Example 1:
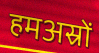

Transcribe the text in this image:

हमअस्रों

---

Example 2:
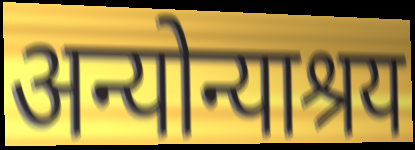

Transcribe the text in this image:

अन्योन्याश्रय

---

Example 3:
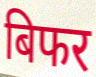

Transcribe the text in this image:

बिफर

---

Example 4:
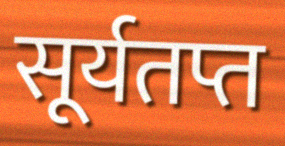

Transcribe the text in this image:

सूर्यतप्त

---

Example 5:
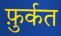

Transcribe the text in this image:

फ़ुर्कत